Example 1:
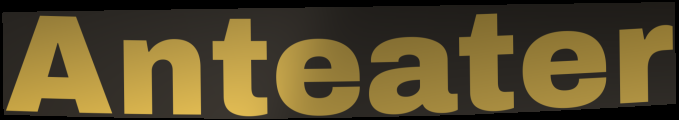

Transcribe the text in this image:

Anteater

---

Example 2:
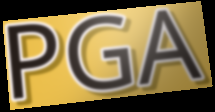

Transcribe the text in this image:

PGA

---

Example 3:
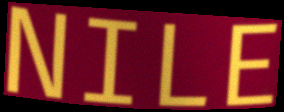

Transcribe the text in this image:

NILE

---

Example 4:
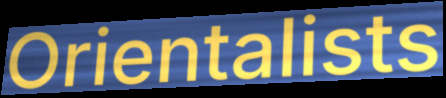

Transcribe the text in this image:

Orientalists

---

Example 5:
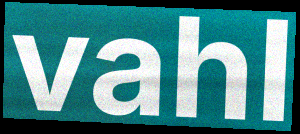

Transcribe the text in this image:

vahl